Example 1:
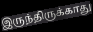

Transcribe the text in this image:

இருந்திருக்காது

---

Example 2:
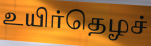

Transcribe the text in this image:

உயிர்தெழச்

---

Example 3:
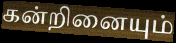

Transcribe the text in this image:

கன்றினையும்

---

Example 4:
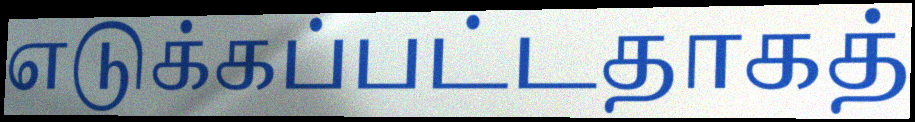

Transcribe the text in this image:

எடுக்கப்பட்டதாகத்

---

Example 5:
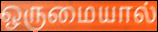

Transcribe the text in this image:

ஒருமையால்